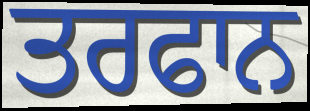
ਤਰਫਾਨ